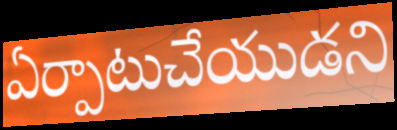
ఏర్పాటుచేయుడని